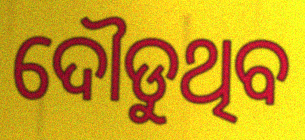
ଦୌଡୁଥିବ